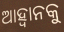
ଆହ୍ବାନକୁ